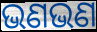
ଭଣଭଣ